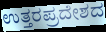
ಉತ್ತರಪ್ರದೇಶದ